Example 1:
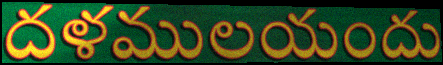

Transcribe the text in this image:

దళములయందు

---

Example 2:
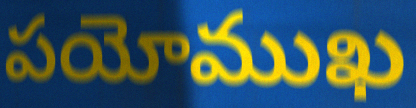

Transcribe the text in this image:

పయోముఖ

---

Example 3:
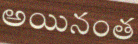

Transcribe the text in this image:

అయినంత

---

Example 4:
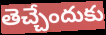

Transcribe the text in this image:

తెచ్చేందుకు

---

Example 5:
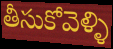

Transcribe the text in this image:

తీసుకోవెళ్ళి